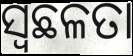
ସ୍ଵଛଳତା